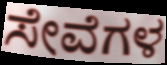
ಸೇವೆಗಳ